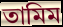
তামিম